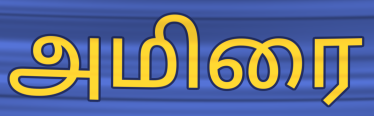
அமிரை